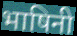
भाषिनी